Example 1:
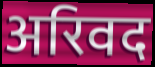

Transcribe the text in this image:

अरिवद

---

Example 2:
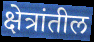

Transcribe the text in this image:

क्षेत्रांतील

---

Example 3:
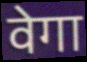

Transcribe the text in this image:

वेगा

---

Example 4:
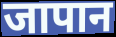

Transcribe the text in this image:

जापान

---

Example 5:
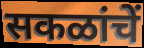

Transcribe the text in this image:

सकळांचें